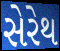
સેરેથ